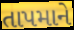
તાપમાને